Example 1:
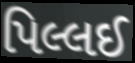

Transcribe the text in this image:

પિલ્લઈ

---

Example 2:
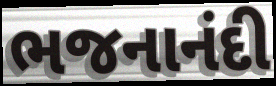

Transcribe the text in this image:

ભજનાનંદી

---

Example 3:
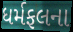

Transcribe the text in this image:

ધર્મફલના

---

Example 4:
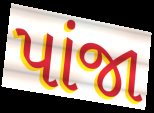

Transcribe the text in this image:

પાંજા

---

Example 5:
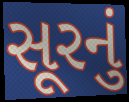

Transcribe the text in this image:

સૂરનું